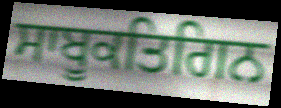
ਸਾਬੂਕਤਿਗਿਨ